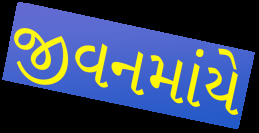
જીવનમાંયે